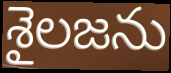
శైలజను